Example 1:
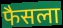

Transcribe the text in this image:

फैसला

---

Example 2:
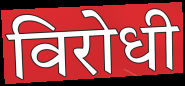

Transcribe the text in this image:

विरोधी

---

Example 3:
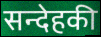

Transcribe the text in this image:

सन्देहकी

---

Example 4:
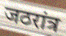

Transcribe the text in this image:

जठरांत्र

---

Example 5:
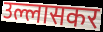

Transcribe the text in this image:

उल्लासकर